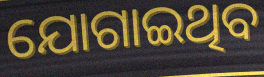
ଯୋଗାଇଥିବ